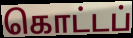
கொட்டப்